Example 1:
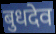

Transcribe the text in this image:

बुधदेव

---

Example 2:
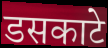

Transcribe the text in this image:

डसकाटे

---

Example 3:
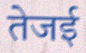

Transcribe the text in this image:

तेजई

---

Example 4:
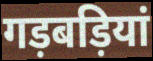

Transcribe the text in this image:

गड़बड़ियां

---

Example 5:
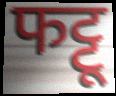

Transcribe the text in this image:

फट्टू